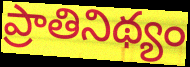
ప్రాతినిథ్యం